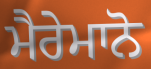
ਮੈਰੇਮਾਨੋ